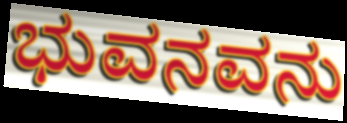
ಭುವನವನು